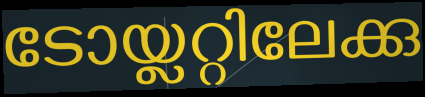
ടോയ്ലറ്റിലേക്കു